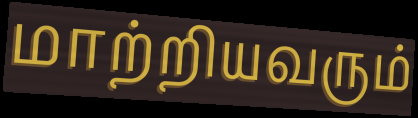
மாற்றியவரும்